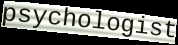
psychologist